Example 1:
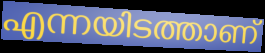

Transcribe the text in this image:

എന്നയിടത്താണ്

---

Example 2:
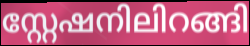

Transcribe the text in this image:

സ്റ്റേഷനിലിറങ്ങി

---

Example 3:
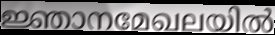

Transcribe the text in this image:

ജ്ഞാനമേഖലയിൽ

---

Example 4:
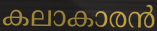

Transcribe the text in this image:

കലാകാരൻ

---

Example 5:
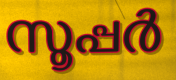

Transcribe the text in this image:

സൂപ്പർ